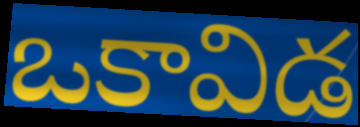
ఒకావిడ